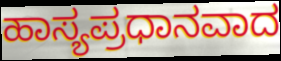
ಹಾಸ್ಯಪ್ರಧಾನವಾದ